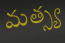
మత్స్య